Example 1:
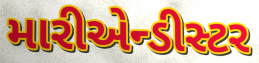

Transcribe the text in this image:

મારીએન્ડીસ્ટર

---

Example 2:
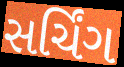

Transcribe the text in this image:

સર્ચિંગ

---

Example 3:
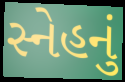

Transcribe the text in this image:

સ્નેહનું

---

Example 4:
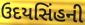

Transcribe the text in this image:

ઉદયસિંહની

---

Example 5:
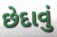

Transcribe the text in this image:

છેદાવું